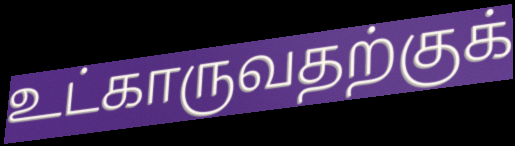
உட்காருவதற்குக்